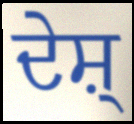
ਦੇਸ਼੍